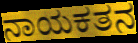
ನಾಯಕತನ